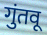
गुंतवू